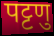
पट्टणु